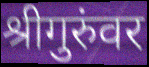
श्रीगुरुंवर